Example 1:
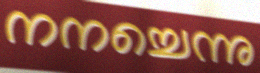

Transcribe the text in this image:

നനച്ചെന്നു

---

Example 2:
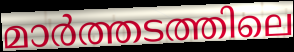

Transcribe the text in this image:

മാർത്തടത്തിലെ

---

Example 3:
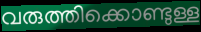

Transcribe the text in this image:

വരുത്തിക്കൊണ്ടുള്ള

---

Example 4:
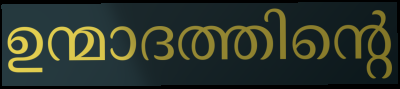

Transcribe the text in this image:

ഉന്മാദത്തിന്റെ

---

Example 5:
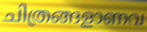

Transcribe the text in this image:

ചിത്രങ്ങളാണവ